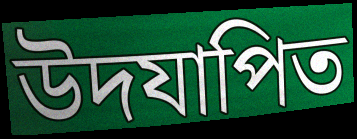
উদযাপিত